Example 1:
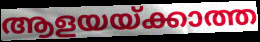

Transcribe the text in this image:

ആളയയ്ക്കാത്ത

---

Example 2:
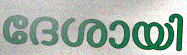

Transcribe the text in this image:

ദേശായി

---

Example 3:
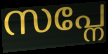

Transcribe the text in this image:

സപ്നേ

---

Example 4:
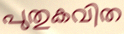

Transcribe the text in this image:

പുതുകവിത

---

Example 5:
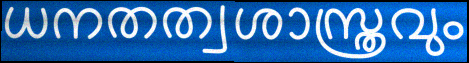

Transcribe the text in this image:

ധനതത്വശാസ്ത്രവും